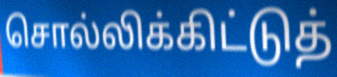
சொல்லிக்கிட்டுத்